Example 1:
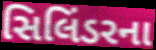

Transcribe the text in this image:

સિલિંડરના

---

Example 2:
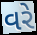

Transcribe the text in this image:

વરે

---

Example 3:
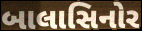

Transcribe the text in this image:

બાલાસિનોર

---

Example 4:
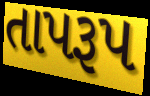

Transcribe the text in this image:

તાપરૂપ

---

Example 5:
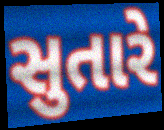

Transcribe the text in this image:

સુતારે